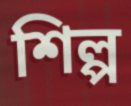
শিল্প